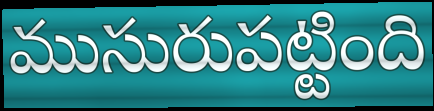
ముసురుపట్టింది